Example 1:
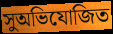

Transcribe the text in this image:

সুঅভিযোজিত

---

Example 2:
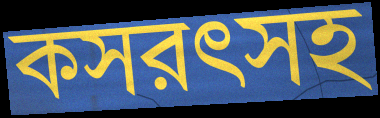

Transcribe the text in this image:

কসরৎসহ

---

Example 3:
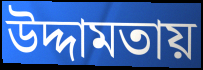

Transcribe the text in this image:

উদ্দামতায়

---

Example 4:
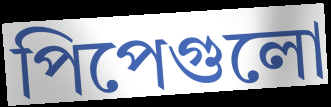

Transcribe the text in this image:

পিপেগুলো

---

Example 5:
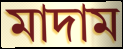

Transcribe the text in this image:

মাদাম